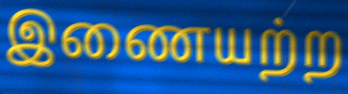
இணையற்ற